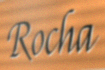
Rocha